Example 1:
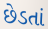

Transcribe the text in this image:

છેડતાં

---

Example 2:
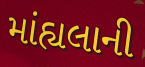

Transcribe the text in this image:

માંહ્યલાની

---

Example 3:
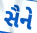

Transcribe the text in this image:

સૈને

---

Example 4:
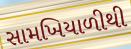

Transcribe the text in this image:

સામખિયાળીથી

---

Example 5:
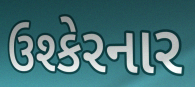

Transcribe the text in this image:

ઉશ્કેરનાર